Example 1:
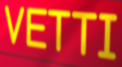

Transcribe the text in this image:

VETTI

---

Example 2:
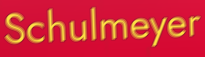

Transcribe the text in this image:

Schulmeyer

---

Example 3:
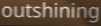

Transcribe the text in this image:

outshining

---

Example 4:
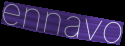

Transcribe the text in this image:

ennavo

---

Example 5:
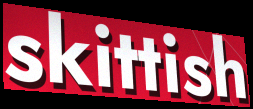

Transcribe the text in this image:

skittish